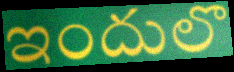
ఇందులొ